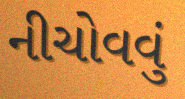
નીચોવવું